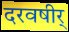
दरवषीर्